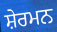
ਸ਼ੇਰਮਨ